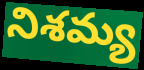
నిశమ్య